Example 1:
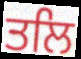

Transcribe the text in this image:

ਤਲਿ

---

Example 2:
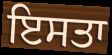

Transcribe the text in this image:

ਇਸਤਾ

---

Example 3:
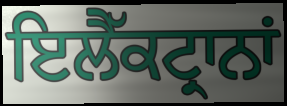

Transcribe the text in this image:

ਇਲੈੱਕਟ੍ਰਾਨਾਂ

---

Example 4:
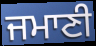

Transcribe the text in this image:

ਜਮਾਣੀ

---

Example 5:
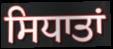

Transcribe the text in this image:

ਸਿਧਾਤਾਂ